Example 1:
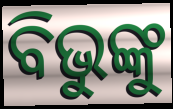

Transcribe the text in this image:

ବିଭୁଙ୍କୁ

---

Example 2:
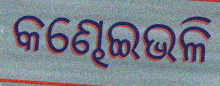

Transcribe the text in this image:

କଣ୍ଢେଇଭଳି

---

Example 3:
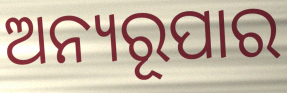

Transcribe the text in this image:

ଅନ୍ୟରୂପାର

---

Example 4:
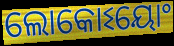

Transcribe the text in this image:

ଲୋକୋଽୟୋଂ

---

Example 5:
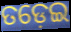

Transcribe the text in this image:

ତଡ଼େଇ